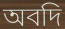
অবদি